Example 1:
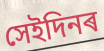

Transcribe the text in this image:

সেইদিনৰ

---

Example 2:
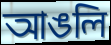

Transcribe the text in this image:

আঙলি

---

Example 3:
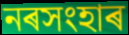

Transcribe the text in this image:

নৰসংহাৰ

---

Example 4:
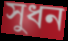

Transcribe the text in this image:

সুধন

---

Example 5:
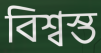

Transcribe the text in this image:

বিশ্বস্ত